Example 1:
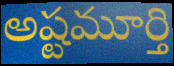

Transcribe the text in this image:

అష్టమూర్తి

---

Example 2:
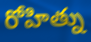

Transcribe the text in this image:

రోహిత్ను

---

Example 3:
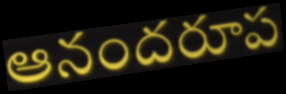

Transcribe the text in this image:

ఆనందరూప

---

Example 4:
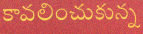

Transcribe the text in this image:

కావలించుకున్న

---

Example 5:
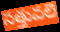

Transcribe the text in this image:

సత్తువలె